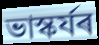
ভাস্কৰ্যৰ